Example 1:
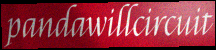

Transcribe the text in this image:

pandawillcircuit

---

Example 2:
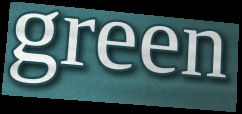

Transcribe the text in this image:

green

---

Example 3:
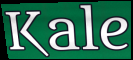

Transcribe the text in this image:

Kale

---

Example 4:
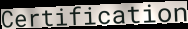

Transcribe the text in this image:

Certification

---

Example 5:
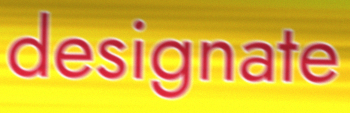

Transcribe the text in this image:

designate